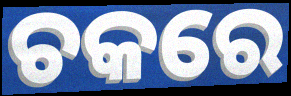
ଚକରେ